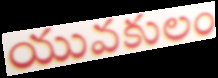
యువకులం